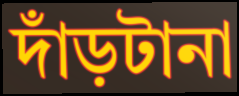
দাঁড়টানা